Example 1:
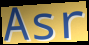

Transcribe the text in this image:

Asr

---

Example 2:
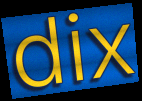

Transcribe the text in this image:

dix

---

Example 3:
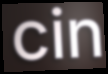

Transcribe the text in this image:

cin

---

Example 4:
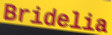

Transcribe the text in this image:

Bridelia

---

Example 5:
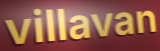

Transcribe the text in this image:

villavan